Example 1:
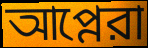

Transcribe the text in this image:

আপ্নেরা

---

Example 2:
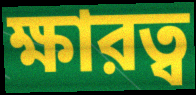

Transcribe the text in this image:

ক্ষারত্ব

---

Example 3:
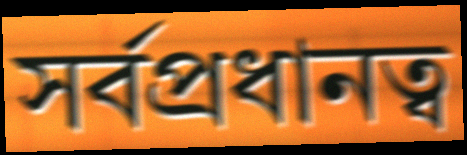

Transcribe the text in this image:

সর্বপ্রধানত্ব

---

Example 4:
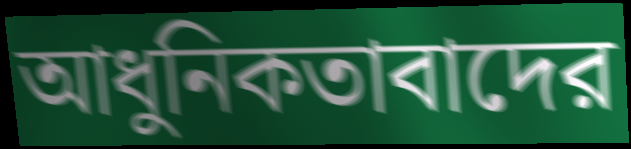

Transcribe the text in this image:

আধুনিকতাবাদের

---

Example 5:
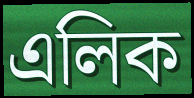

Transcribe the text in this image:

এলিক